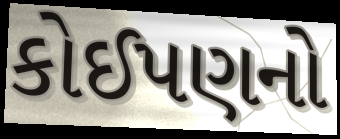
કોઈપણનો